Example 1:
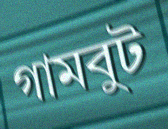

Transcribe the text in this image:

গামবুট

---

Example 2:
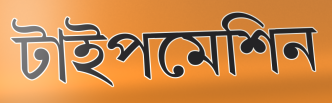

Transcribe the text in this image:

টাইপমেশিন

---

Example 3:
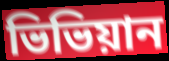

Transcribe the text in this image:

ভিভিয়ান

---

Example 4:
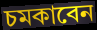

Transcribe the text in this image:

চমকাবেন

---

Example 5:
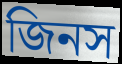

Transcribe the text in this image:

জিনস